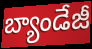
బ్యాండేజీ